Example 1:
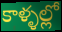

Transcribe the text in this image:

కాళ్ళల్లో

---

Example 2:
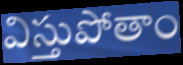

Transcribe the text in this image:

విస్తుపోతాం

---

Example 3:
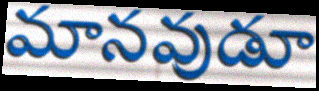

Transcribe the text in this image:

మానవుడూ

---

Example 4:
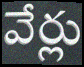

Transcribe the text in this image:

వేర్లు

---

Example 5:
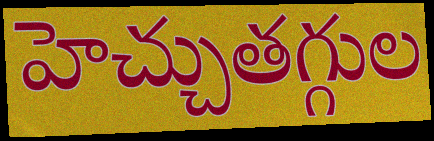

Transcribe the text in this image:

హెచ్చుతగ్గుల